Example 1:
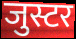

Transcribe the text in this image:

जुस्टर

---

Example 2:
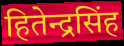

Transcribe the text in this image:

हितेन्द्रसिंह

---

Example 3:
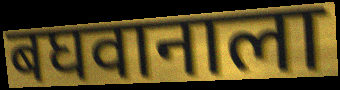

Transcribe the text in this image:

बघवानाला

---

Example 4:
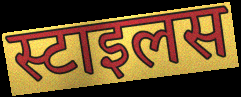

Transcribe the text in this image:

स्टाइलस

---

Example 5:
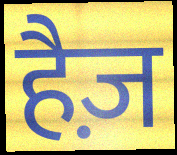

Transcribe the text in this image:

हैज़